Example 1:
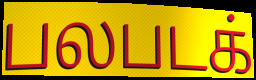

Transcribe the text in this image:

பலபடக்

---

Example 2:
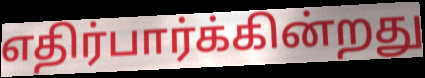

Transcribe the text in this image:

எதிர்பார்க்கின்றது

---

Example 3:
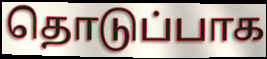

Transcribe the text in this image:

தொடுப்பாக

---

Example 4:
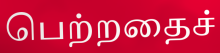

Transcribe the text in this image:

பெற்றதைச்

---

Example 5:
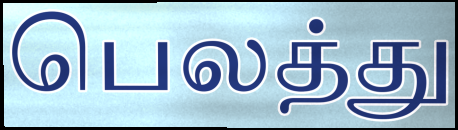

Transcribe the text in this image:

பெலத்து